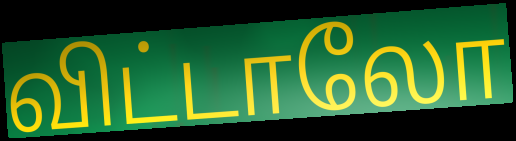
விட்டாலோ